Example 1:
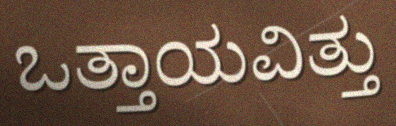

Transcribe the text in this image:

ಒತ್ತಾಯವಿತ್ತು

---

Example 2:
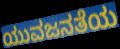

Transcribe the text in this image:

ಯುವಜನತೆಯ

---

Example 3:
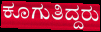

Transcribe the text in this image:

ಕೂಗುತಿದ್ದರು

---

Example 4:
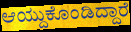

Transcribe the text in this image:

ಆಯ್ದುಕೊಂಡಿದ್ದಾರೆ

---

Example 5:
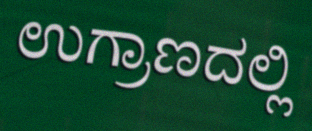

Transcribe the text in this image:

ಉಗ್ರಾಣದಲ್ಲಿ